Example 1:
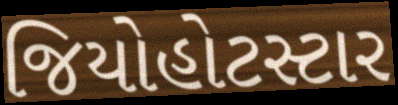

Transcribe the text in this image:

જિયોહોટસ્ટાર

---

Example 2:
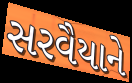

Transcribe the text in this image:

સરવૈયાને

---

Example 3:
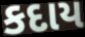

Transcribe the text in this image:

કદાય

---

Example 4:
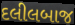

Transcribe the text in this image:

દલીલબાજ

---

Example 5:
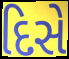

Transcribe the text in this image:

દિસે